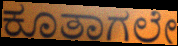
ಕೂತಾಗಲೇ